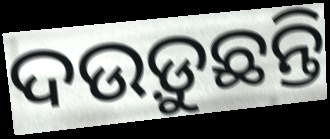
ଦଉଡ଼ୁଛନ୍ତି